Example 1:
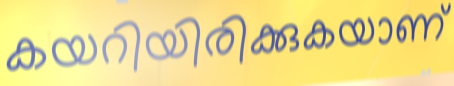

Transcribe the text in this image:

കയറിയിരിക്കുകയാണ്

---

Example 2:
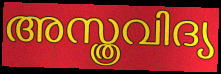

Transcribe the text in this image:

അസ്ത്രവിദ്യ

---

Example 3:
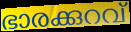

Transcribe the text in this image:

ഭാരക്കുറവ്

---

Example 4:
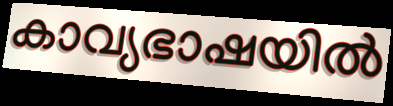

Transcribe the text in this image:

കാവ്യഭാഷയിൽ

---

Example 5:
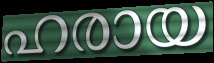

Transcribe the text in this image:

ഹരായ